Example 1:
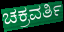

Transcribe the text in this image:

ಚಕ್ರವರ್ತಿ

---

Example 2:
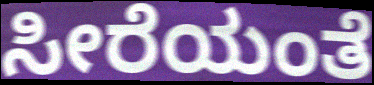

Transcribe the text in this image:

ಸೀರೆಯಂತೆ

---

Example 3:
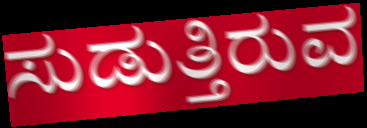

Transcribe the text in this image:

ಸುಡುತ್ತಿರುವ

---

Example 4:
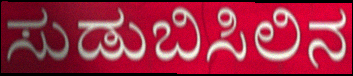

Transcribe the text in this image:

ಸುಡುಬಿಸಿಲಿನ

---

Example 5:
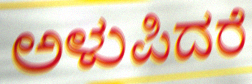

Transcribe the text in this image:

ಅಳುಪಿದರೆ